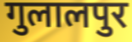
गुलालपुर